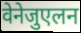
वेनेजुएलन